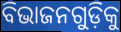
ବିଭାଜନଗୁଡ଼ିକୁ